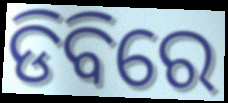
ଡିବିରେ